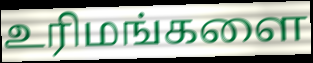
உரிமங்களை